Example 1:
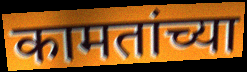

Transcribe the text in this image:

कामतांच्या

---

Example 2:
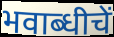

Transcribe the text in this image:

भवाब्धीचें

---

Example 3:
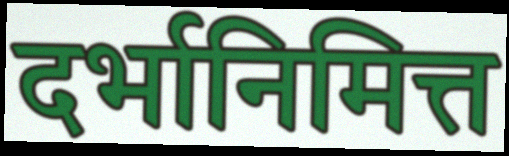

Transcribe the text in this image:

दर्भानिमित्त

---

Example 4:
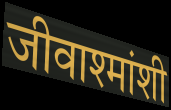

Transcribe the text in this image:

जीवाश्मांशी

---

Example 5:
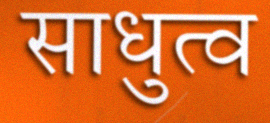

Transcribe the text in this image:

साधुत्व